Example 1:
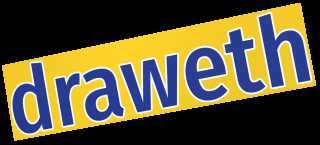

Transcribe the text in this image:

draweth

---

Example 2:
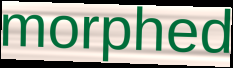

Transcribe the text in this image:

morphed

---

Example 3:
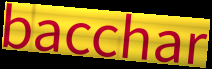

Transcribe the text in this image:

bacchar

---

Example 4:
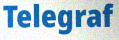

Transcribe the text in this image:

Telegraf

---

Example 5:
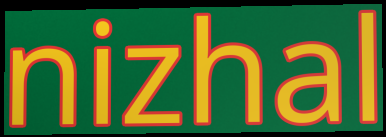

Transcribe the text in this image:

nizhal